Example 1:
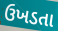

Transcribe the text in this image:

ઉખડતા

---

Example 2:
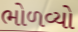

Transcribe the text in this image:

ભોળવ્યો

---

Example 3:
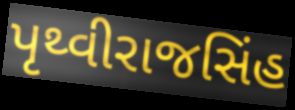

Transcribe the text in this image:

પૃથ્વીરાજસિંહ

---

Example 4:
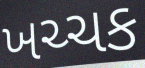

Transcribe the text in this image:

ખચ્ચક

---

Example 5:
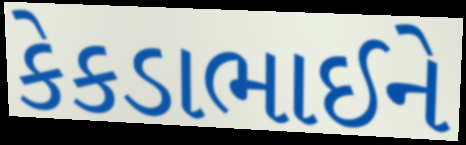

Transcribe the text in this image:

કેકડાભાઈને